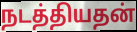
நடத்தியதன்